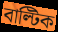
বাল্টিক